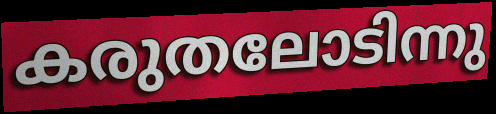
കരുതലോടിന്നു